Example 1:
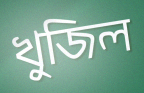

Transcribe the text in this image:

খুজিল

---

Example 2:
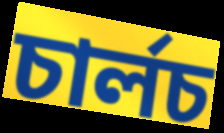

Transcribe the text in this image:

চাৰ্লচ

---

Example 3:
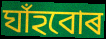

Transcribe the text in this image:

ঘাঁহবোৰ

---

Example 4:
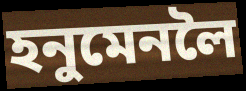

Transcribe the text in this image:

হনুমেনলৈ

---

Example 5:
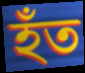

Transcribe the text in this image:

হঁত